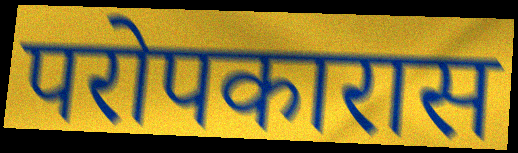
परोपकारास